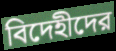
বিদেহীদের